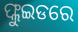
ଫ୍ଲୁଇଡରେ